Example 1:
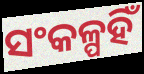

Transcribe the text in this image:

ସଂକଳ୍ପହିଁ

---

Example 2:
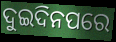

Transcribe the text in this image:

ଦୁଇଦିନପରେ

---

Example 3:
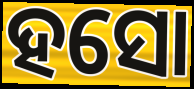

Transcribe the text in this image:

ହସୋ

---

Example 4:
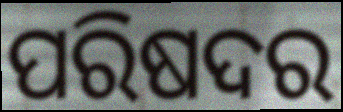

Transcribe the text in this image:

ପରିଷଦର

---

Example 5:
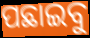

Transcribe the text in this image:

ପଛାଇବୁ